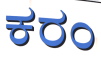
ಕರಂ